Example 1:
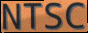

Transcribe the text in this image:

NTSC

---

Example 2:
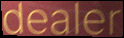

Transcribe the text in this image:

dealer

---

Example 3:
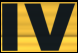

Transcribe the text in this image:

IV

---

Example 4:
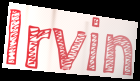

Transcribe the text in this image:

Irvin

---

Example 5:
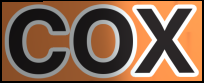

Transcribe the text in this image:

COX